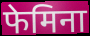
फेमिना